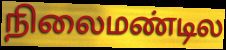
நிலைமண்டில